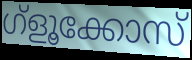
ഗ്ളൂക്കോസ്